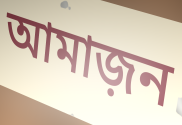
আমাজ়ন